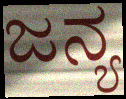
ಜನ್ಯ